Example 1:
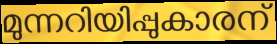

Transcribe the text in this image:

മുന്നറിയിപ്പുകാരന്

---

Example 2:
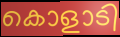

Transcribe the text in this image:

കൊളാടി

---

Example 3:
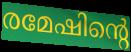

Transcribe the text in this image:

രമേഷിന്റെ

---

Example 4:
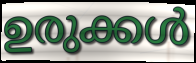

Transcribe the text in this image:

ഉരുക്കൾ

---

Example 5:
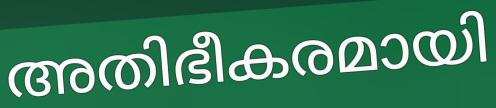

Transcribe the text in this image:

അതിഭീകരമായി